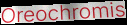
Oreochromis